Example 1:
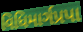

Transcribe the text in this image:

વિધિમાર્ગપ્રપા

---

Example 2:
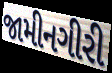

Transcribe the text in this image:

જામીનગીરી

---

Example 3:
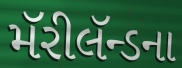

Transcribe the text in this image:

મૅરીલૅન્ડના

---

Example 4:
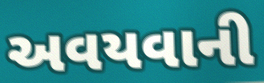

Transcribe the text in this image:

અવયવાની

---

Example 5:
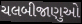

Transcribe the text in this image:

ચલબીજાણુઓ